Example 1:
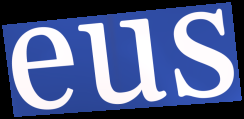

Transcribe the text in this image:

eus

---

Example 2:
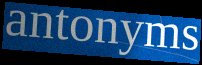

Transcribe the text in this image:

antonyms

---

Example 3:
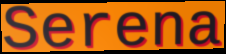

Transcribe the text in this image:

Serena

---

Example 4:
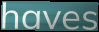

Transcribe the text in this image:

haves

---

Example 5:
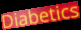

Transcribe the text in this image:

Diabetics